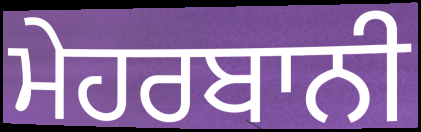
ਮੇਹਰਬਾਨੀ